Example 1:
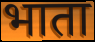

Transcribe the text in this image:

भाता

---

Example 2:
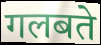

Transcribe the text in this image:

गलबते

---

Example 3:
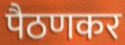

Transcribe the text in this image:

पैठणकर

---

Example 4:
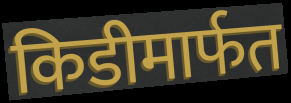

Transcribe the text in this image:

किडीमार्फत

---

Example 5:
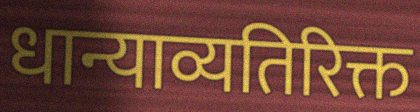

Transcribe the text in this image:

धान्याव्यतिरिक्त